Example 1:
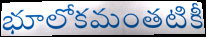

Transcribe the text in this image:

భూలోకమంతటికీ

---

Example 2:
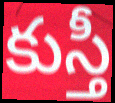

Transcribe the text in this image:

కుస్తీ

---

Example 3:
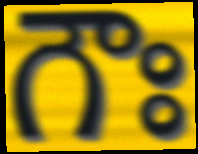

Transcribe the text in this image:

గౌః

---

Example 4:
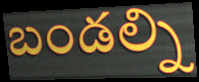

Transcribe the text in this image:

బండల్ని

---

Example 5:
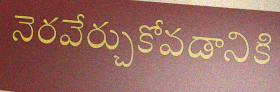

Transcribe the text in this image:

నెరవేర్చుకోవడానికి